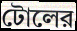
টোলের